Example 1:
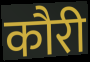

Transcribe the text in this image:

कौरी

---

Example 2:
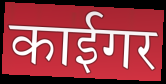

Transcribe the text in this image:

काईगर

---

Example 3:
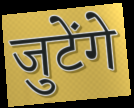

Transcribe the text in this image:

जुटेंगे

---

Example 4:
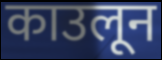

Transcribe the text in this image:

काउलून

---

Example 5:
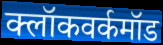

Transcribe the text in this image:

क्लॉकवर्कमॉड